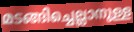
മടങ്ങിച്ചെല്ലാനുള്ള